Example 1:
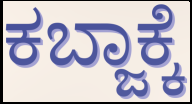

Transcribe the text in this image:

ಕಬ್ಜಾಕ್ಕೆ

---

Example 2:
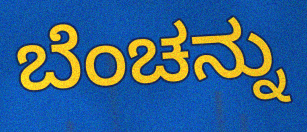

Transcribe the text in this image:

ಬೆಂಚನ್ನು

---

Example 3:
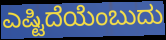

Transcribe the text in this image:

ಎಷ್ಟಿದೆಯೆಂಬುದು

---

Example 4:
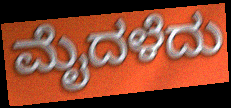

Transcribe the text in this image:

ಮೈದಳೆದು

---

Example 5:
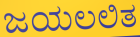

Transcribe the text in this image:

ಜಯಲಲಿತ